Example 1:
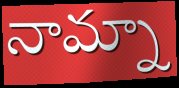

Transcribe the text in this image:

నామ్నా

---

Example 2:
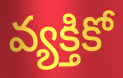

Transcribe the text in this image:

వ్యక్తికో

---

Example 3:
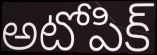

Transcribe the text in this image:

అటోపిక్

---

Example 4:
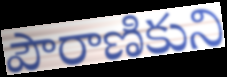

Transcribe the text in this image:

పౌరాణికుని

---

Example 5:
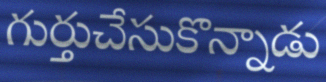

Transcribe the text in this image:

గుర్తుచేసుకొన్నాడు